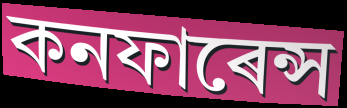
কনফাৰেন্স